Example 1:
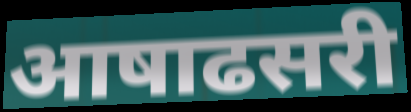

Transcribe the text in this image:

आषाढसरी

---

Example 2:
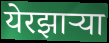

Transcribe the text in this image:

येरझार्‍या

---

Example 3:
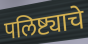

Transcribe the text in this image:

पलिष्ट्याचे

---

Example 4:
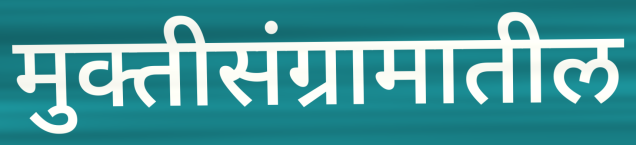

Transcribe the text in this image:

मुक्तीसंग्रामातील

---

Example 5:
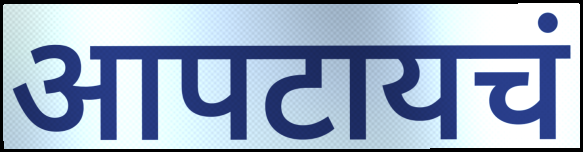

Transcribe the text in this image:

आपटायचं